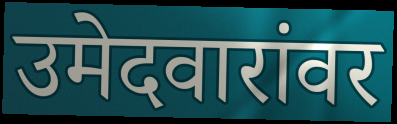
उमेदवारांवर